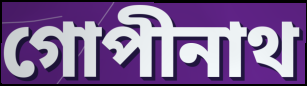
গোপীনাথ